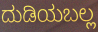
ದುಡಿಯಬಲ್ಲ